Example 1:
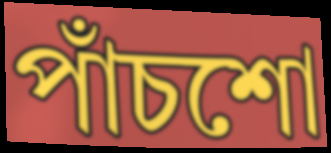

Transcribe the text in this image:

পাঁচশো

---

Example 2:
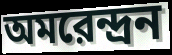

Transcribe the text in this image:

অমরেন্দ্রন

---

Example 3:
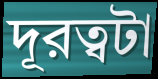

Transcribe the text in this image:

দূরত্বটা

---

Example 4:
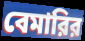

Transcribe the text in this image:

বেমারির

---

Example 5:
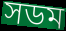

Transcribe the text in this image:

সডম